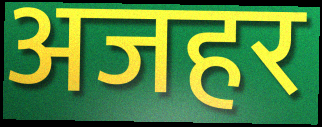
अजहर